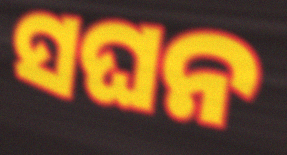
ସଘନ